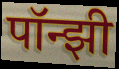
पॉन्झी